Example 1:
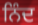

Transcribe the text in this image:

ਨਿੰਦ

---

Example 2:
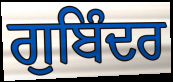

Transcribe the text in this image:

ਗੁਬਿੰਦਰ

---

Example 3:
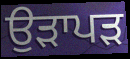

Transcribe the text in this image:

ਉੜਾਪੜ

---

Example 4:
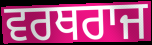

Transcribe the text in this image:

ਵਰਥਰਾਜ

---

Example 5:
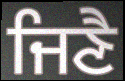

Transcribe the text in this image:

ਜਿਣੈ